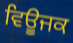
ਵਿਊਜਕ